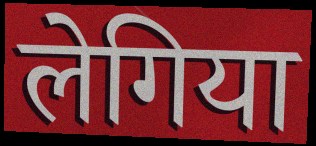
लेगिया